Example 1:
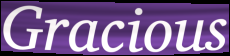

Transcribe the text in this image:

Gracious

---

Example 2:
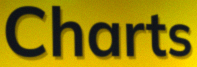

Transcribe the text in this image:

Charts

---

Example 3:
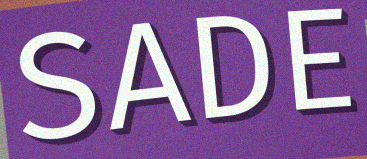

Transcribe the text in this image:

SADE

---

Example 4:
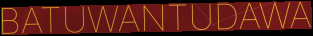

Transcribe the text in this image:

BATUWANTUDAWA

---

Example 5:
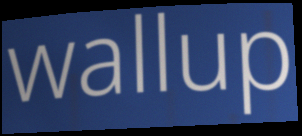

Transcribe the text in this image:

wallup